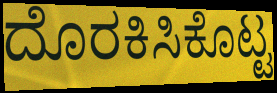
ದೊರಕಿಸಿಕೊಟ್ಟ